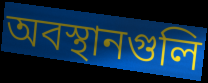
অবস্থানগুলি